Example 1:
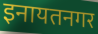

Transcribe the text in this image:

इनायतनगर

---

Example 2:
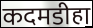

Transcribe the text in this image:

कदमडीहा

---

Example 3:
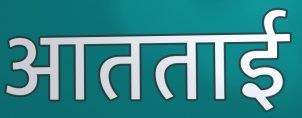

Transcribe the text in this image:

आतताई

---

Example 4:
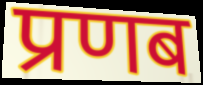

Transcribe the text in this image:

प्रणब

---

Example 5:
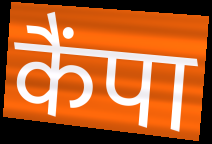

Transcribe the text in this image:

कैंपा